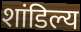
शांडिल्य